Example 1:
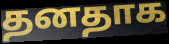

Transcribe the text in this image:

தனதாக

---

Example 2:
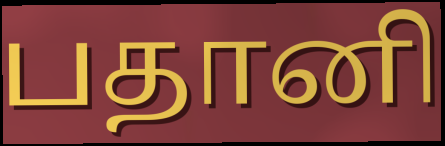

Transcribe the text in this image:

பதானி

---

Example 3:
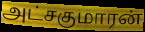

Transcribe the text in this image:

அட்சகுமாரன்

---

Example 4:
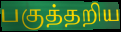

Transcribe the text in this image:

பகுத்தறிய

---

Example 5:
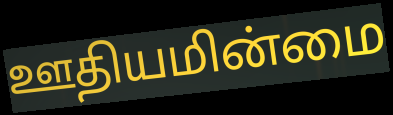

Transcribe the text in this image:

ஊதியமின்மை